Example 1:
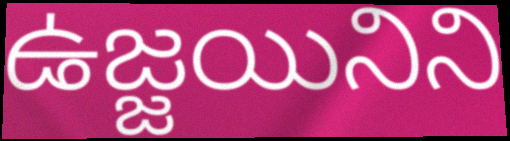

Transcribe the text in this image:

ఉజ్జయినిని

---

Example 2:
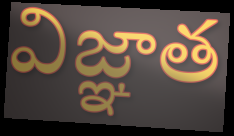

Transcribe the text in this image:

విజ్ఞాత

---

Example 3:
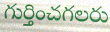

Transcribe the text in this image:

గుర్తించగలరు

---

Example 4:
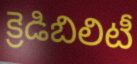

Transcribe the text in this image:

క్రెడిబిలిటీ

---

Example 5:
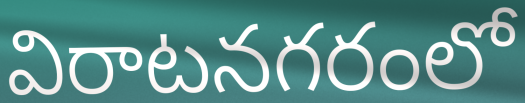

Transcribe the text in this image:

విరాటనగరంలో